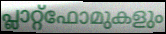
പ്ലാറ്റ്ഫോമുകളും